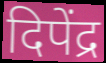
दिपेंद्र